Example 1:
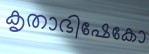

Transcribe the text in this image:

കൃതാഭിഷേകോ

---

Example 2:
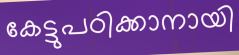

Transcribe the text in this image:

കേട്ടുപഠിക്കാനായി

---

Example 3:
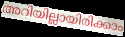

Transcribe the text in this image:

അറിയില്ലായിരിക്കാം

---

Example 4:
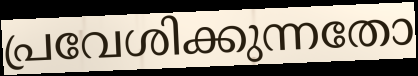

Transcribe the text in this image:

പ്രവേശിക്കുന്നതോ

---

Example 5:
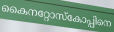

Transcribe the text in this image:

കൈനറ്റോസ്കോപ്പിനെ